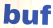
buf